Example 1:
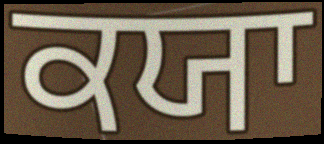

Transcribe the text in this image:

ਕਯਾ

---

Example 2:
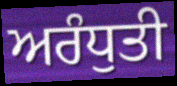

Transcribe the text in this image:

ਅਰੰਧੁਤੀ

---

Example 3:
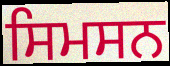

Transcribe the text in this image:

ਸਿਮਸਨ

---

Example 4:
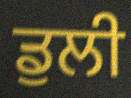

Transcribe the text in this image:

ਡੁਲੀ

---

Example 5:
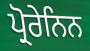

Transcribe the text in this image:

ਪ੍ਰੋਰੇਨਿਨ